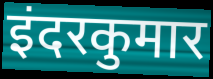
इंदरकुमार